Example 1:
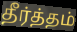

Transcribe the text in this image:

தீர்த்தம்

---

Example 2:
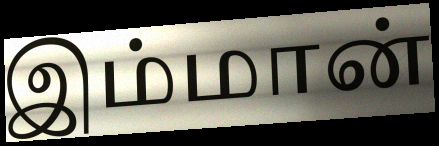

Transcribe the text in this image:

இம்மான்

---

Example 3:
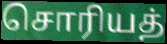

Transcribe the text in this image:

சொரியத்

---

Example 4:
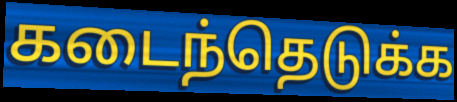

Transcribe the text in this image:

கடைந்தெடுக்க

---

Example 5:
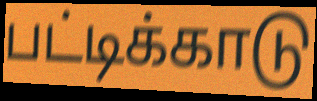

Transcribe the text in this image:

பட்டிக்காடு